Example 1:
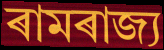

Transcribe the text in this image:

ৰামৰাজ্য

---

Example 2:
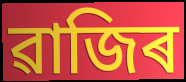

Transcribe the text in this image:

ৱাজিৰ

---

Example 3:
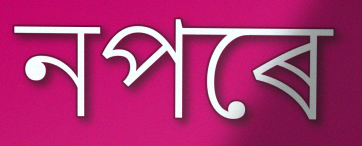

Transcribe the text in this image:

নপৰে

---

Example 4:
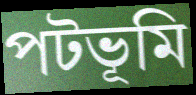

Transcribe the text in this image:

পটভূমি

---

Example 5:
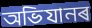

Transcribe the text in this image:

অভিযানৰ